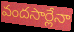
వందసార్లేనా